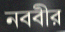
নববীর